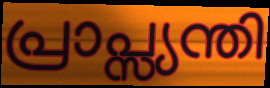
പ്രാപ്സ്യന്തി